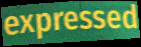
expressed